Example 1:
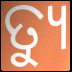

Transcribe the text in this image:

ତ୍ୟୁ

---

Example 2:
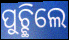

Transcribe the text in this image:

ପୁଚ୍ଛିଲେ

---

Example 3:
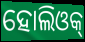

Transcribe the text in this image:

ହୋଲିଓକ୍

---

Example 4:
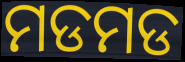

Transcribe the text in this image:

ମଡମଡ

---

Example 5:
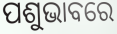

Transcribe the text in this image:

ପଶୁଭାବରେ